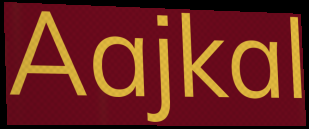
Aajkal